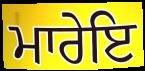
ਮਾਰੇਇ